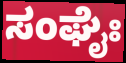
ಸಂಘೈಃ